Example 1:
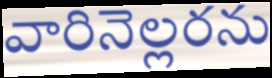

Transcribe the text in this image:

వారినెల్లరను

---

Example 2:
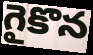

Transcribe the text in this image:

గైకొన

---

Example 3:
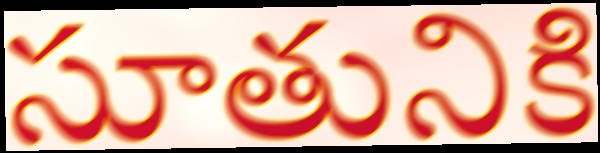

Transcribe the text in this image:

సూతునికి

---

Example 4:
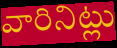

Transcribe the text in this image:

వారినిట్లు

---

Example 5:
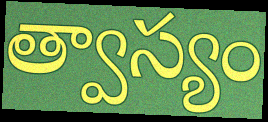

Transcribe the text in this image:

త్వాస్యం